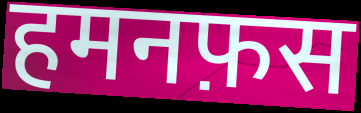
हमनफ़स